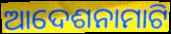
ଆଦେଶନାମାଟି